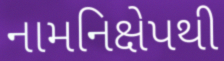
નામનિક્ષેપથી